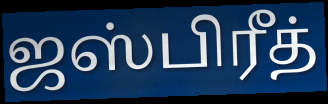
ஜஸ்பிரீத்